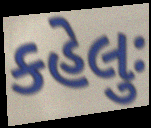
કહેલુઃ